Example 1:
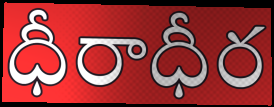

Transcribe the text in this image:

ధీరాధీర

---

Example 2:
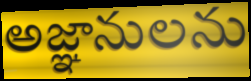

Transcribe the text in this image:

అజ్ఞానులను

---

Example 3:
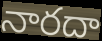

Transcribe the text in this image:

నారదా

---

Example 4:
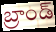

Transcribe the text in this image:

బ్రాండ్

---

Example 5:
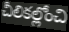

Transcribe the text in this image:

చీలికల్లోంచి